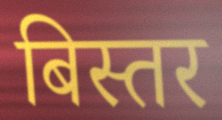
बिस्तर